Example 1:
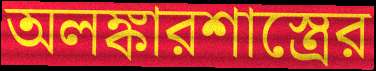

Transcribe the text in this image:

অলঙ্কারশাস্ত্রের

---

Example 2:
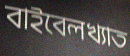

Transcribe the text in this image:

বাইবেলখ্যাত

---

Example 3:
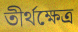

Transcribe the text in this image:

তীর্থক্ষেত্র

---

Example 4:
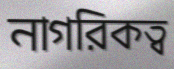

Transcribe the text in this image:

নাগরিকত্ব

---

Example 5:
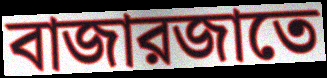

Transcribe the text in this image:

বাজারজাতে